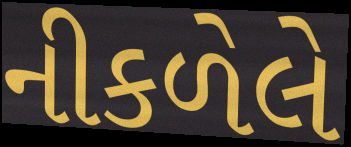
નીકળેલે